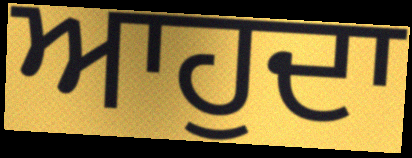
ਆਹੁਦਾ